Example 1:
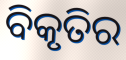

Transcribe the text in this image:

ବିକୃତିର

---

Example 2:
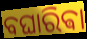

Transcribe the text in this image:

ବଘାରିଵା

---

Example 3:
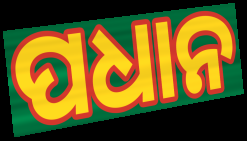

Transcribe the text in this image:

ପଧାନ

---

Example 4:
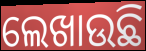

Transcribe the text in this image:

ଲେଖାଉଛି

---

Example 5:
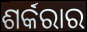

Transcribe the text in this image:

ଶର୍କରାର